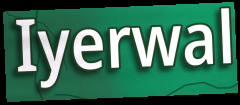
Iyerwal